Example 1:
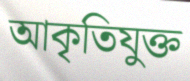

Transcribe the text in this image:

আকৃতিযুক্ত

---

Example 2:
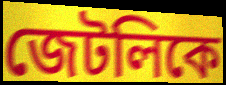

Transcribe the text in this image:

জেটলিকে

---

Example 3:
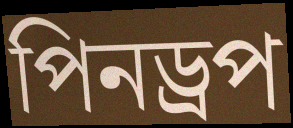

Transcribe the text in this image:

পিনড্রপ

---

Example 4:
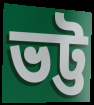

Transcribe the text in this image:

ভট্ট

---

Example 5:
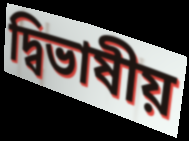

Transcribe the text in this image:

দ্বিভাষীয়